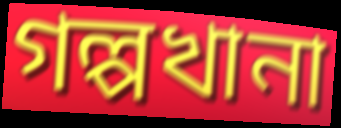
গল্পখানা